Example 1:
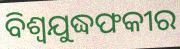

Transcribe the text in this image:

ବିଶ୍ୱଯୁଦ୍ଧଫକୀର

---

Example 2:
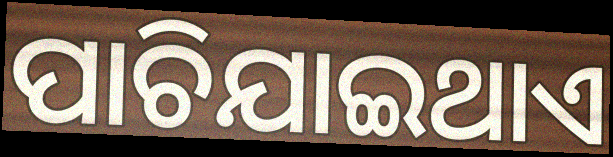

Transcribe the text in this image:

ପାଚିଯାଇଥାଏ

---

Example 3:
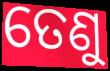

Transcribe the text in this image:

ତେଣୁ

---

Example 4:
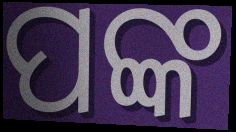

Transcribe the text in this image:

ପଙ୍କ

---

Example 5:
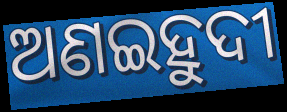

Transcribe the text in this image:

ଅଣଇହୁଦୀ